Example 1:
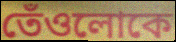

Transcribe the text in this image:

তেঁওলোকে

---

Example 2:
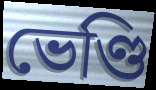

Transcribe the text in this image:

ভেণ্ডি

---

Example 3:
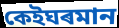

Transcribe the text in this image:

কেইঘৰমান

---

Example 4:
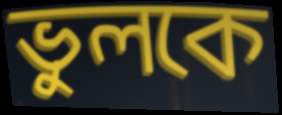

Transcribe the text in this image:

ভুলকে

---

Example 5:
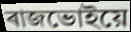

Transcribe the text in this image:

ৰাজভোইয়ে